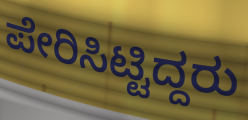
ಪೇರಿಸಿಟ್ಟಿದ್ದರು